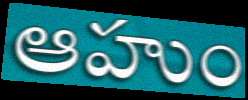
ఆహుం